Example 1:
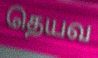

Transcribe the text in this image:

தெயவ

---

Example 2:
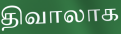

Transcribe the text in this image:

திவாலாக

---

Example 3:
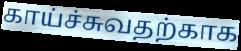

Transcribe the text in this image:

காய்ச்சுவதற்காக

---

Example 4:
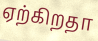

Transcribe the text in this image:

ஏற்கிறதா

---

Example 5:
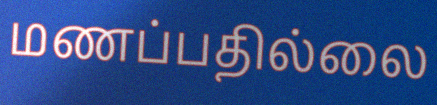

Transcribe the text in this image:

மணப்பதில்லை